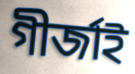
গীৰ্জাই